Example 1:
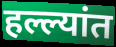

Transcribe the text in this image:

हल्ल्यांत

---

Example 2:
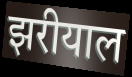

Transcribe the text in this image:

झरीयाल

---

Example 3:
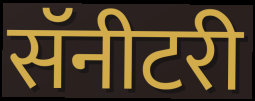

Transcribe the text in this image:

सॅनीटरी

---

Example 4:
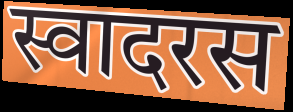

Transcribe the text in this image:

स्वादरस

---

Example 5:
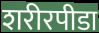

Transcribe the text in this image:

शरीरपीडा